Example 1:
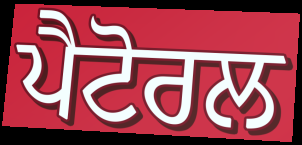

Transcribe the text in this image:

ਪੈਟੋਰਲ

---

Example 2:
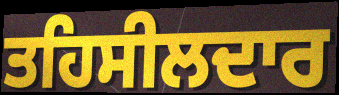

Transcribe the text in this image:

ਤਹਿਸੀਲਦਾਰ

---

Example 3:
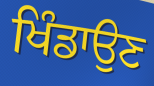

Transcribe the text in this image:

ਖਿੰਡਾਉਣ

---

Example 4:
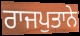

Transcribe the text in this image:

ਰਾਜਪੁਤਾਨੇ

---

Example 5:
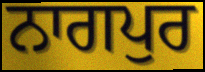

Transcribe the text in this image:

ਨਾਗਪੁਰ